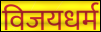
विजयधर्म